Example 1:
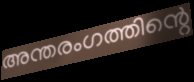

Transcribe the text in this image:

അന്തരംഗത്തിന്റെ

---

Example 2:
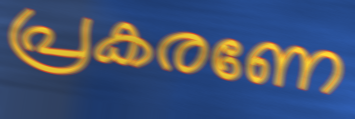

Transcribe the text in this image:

പ്രകരണേ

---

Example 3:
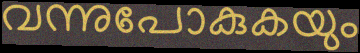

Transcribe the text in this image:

വന്നുപോകുകയും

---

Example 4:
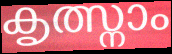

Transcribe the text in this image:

കൃത്സ്നാം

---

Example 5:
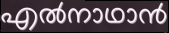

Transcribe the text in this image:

എൽനാഥാൻ